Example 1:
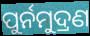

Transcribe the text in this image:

ପୁର୍ନମୁଦ୍ରଣ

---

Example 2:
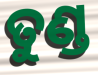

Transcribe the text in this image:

ତୁଣ୍ଡ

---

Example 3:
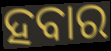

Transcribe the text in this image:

ହବାର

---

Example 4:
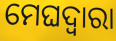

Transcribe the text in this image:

ମେଘଦ୍ୱାରା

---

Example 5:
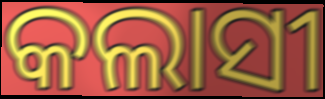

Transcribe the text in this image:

କଲାସୀ